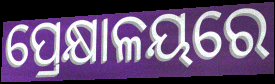
ପ୍ରେକ୍ଷାଳୟରେ